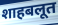
शाहबलूत